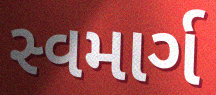
સ્વમાર્ગ